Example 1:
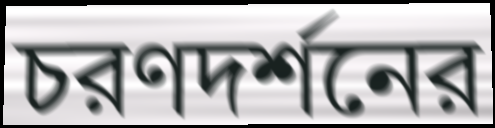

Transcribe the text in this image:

চরণদর্শনের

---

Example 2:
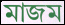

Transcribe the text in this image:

মাজম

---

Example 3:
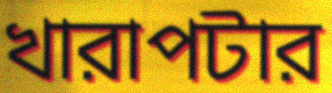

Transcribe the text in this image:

খারাপটার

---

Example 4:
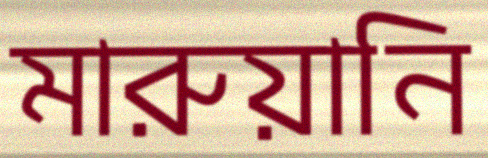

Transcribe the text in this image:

মারুয়ানি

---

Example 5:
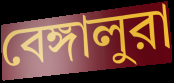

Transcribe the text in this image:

বেঙ্গালুরা